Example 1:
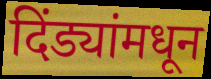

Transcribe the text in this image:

दिंड्यांमधून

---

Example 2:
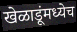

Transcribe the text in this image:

खेळाडूंमध्येच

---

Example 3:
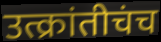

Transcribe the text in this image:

उत्क्रांतीचंच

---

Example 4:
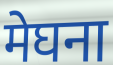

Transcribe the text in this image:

मेघना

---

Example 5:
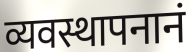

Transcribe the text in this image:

व्यवस्थापनानं